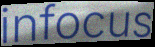
infocus